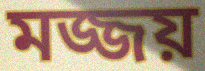
মজ্জয়